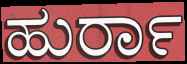
ಹುರ್ರಾ